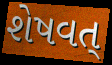
શેષવત્